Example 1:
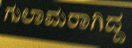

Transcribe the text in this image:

ಗುಲಾಮರಾಗಿದ್ದ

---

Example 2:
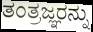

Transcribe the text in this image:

ತಂತ್ರಜ್ಞರನ್ನು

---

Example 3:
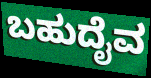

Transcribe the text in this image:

ಬಹುದೈವ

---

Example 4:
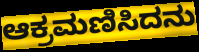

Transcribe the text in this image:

ಆಕ್ರಮಣಿಸಿದನು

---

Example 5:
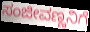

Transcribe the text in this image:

ಸಂಜೀವಣ್ಣನಿಗೆ